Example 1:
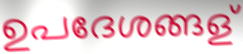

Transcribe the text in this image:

ഉപദേശങ്ങള്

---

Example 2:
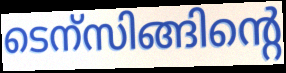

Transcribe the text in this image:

ടെന്സിങ്ങിന്റെ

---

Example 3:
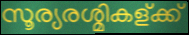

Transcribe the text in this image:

സൂര്യരശ്മികള്ക്ക്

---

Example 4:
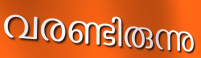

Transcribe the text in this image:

വരണ്ടിരുന്നു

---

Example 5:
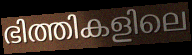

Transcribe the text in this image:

ഭിത്തികളിലെ